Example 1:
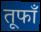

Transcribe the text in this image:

तूफाँ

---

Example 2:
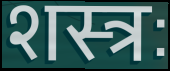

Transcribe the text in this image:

शस्त्रः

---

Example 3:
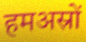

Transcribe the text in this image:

हमअस्रों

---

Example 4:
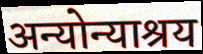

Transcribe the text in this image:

अन्योन्याश्रय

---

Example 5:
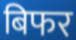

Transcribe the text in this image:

बिफर